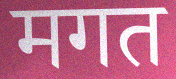
मगत